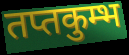
तप्तकुम्भ